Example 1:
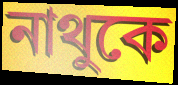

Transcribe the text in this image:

নাথুকে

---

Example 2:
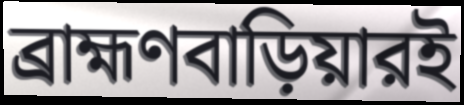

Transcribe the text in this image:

ব্রাহ্মণবাড়িয়ারই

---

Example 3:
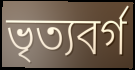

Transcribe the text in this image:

ভৃত্যবর্গ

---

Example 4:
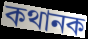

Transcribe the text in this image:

কথানক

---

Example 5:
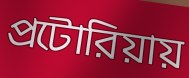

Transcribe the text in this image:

প্রটোরিয়ায়